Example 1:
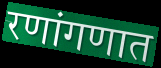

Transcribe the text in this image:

रणांगणात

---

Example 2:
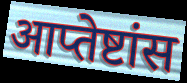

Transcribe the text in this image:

आप्तेष्टांस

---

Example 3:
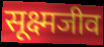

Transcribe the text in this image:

सूक्ष्मजीव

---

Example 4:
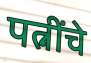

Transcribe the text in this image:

पत्नींचे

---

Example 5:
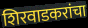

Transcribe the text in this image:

शिरवाडकरांचा